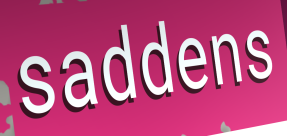
saddens